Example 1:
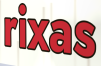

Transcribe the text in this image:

rixas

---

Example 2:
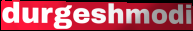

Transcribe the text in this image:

durgeshmodi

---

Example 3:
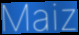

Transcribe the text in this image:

Maiz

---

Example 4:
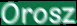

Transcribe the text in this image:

Orosz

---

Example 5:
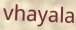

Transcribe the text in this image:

vhayala